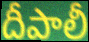
దీపాలీ